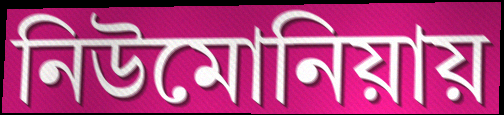
নিউমোনিয়ায়